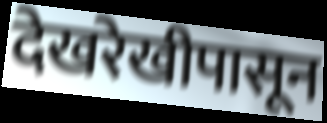
देखरेखीपासून